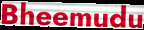
Bheemudu